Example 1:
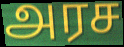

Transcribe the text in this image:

அரச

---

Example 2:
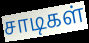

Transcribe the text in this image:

சாடிகள்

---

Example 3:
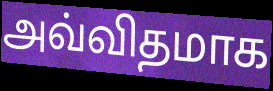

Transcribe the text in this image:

அவ்விதமாக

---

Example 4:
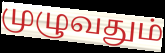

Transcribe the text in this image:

முழுவதும்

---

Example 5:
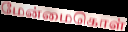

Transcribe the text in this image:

மேன்மைகொள்